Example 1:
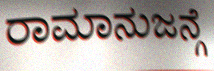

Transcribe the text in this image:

ರಾಮಾನುಜನ್ಗೆ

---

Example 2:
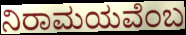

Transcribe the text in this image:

ನಿರಾಮಯವೆಂಬ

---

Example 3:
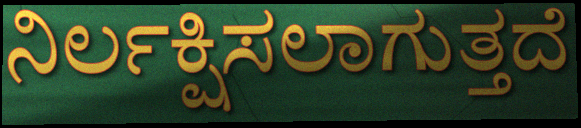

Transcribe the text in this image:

ನಿರ್ಲಕ್ಷಿಸಲಾಗುತ್ತದೆ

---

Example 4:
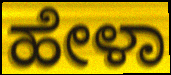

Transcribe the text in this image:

ಹೇಳಾ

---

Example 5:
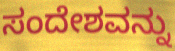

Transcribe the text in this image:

ಸಂದೇಶವನ್ನು